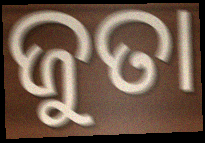
ଜୁତା